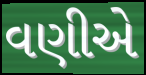
વણીએ